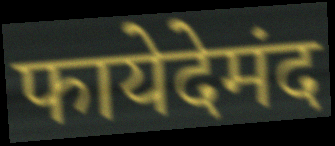
फायेदेमंद